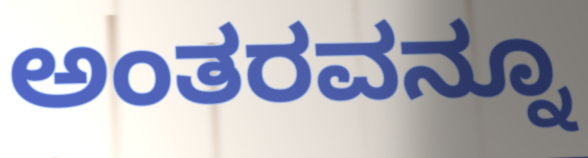
ಅಂತರವನ್ನೂ